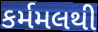
કર્મમલથી